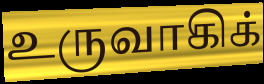
உருவாகிக்